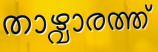
താഴ്വാരത്ത്